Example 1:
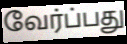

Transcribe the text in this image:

வேர்ப்பது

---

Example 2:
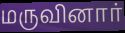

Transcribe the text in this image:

மருவினார்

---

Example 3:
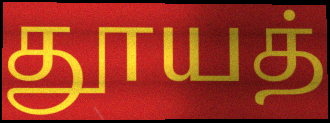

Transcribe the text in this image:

தூயத்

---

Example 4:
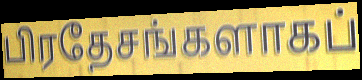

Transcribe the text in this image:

பிரதேசங்களாகப்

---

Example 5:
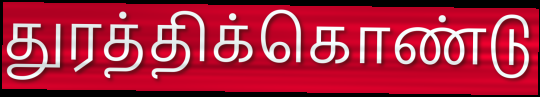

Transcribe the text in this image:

துரத்திக்கொண்டு